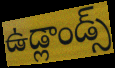
ఉడ్లాండ్స్